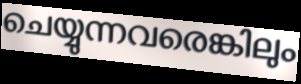
ചെയ്യുന്നവരെങ്കിലും